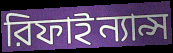
রিফাইন্যান্স